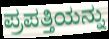
ಪ್ರಪತ್ತಿಯನ್ನು